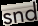
snd